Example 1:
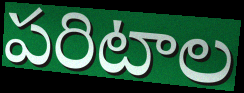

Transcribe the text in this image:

పరిటాల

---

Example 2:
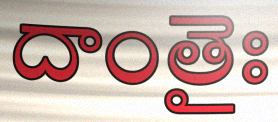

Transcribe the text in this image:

దాంతైః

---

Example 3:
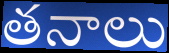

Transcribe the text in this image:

తనాలు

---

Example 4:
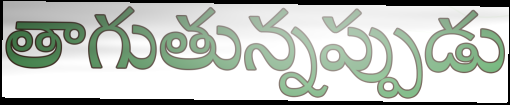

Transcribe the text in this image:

తాగుతున్నప్పుడు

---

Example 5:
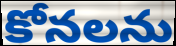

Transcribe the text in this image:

కోనలను